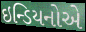
ઇન્ડિયનોએ